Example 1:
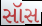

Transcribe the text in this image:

સૉસ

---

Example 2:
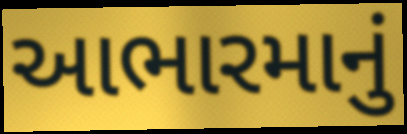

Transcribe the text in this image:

આભારમાનું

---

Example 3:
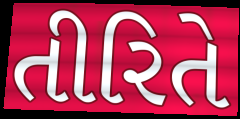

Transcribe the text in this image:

તીરિતે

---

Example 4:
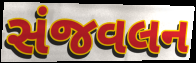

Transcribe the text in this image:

સંજવલન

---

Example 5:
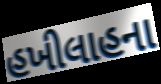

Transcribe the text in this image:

હખીલાહના